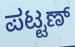
ಪಟ್ಟಣ್